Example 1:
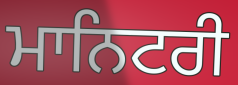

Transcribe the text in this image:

ਮਾਨਿਟਰੀ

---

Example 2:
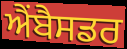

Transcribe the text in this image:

ਐਂਬੈਸਡਰ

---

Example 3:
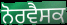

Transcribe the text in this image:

ਨੋਰਵੈਸਕ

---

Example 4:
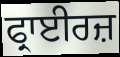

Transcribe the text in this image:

ਫ੍ਰਾਈਰਜ਼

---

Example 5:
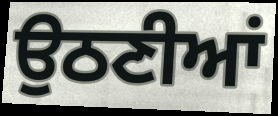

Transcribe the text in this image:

ਉਠਣੀਆਂ